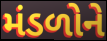
મંડળોને